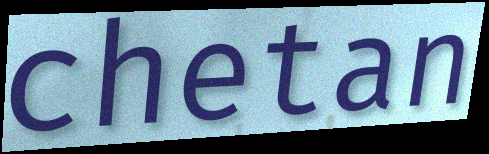
chetan